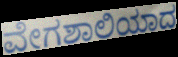
ವೇಗಶಾಲಿಯಾದ